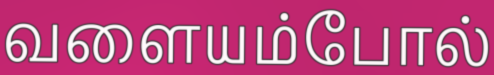
வளையம்போல்